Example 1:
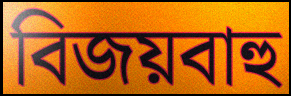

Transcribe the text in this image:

বিজয়বাহু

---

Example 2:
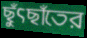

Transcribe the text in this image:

ছুঁৎছাঁতের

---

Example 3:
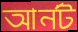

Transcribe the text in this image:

আর্নট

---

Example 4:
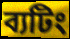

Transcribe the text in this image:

ব্যটিং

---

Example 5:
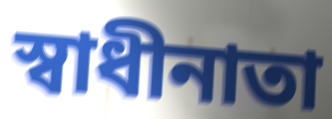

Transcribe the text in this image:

স্বাধীনাতা